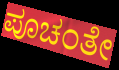
ಪೂಚಂತೇ